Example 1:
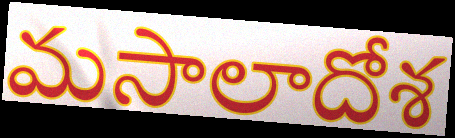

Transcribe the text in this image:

మసాలాదోశ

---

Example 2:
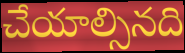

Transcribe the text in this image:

చేయాల్సినది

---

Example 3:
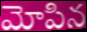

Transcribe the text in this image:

మోపిన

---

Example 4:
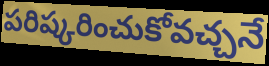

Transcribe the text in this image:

పరిష్కరించుకోవచ్చనే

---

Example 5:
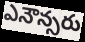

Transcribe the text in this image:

ఎనౌన్సరు